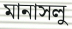
মানাসলু